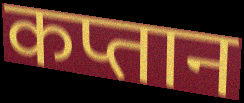
कप्तान